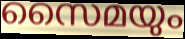
സൈമയും